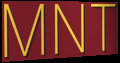
MNT